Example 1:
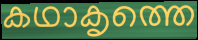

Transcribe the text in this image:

കഥാകൃത്തെ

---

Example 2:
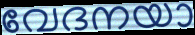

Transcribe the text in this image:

വേദനയാ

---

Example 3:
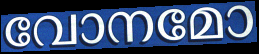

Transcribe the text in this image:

വോനമോ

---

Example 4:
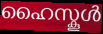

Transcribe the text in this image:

ഹൈസ്കൂൾ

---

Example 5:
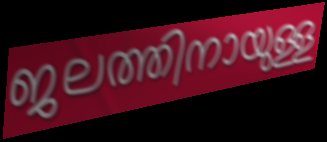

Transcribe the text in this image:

ജലത്തിനായുള്ള